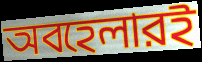
অবহেলারই